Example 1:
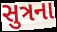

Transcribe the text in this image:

સુત્રના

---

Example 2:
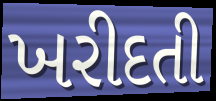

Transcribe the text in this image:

ખરીદતી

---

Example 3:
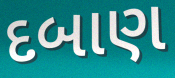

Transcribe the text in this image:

દબાણ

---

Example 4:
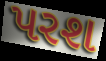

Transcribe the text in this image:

પરશ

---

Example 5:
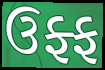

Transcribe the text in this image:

ઉફ્ફ